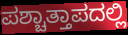
ಪಶ್ಚಾತ್ತಾಪದಲ್ಲಿ